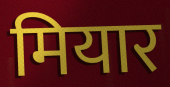
मियार